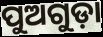
ପୁଅଗୁଡ଼ା